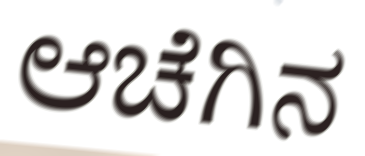
ಆಚೆಗಿನ